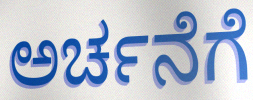
ಅರ್ಚನೆಗೆ